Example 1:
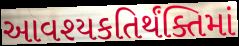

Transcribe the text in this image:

આવશ્યકતિર્થંક્તિમાં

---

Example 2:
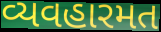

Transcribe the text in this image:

વ્યવહારમત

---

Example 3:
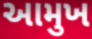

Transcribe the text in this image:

આમુખ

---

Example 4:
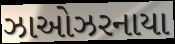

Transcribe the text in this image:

ઝાઓઝરનાયા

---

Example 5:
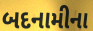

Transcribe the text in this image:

બદનામીના